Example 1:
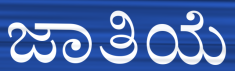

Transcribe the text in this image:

ಜಾತಿಯೆ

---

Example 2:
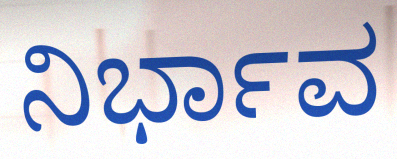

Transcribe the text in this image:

ನಿರ್ಭಾವ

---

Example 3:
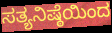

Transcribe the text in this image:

ಸತ್ಯನಿಷ್ಠೆಯಿಂದ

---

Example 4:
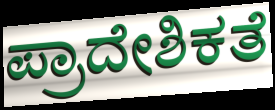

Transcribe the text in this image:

ಪ್ರಾದೇಶಿಕತೆ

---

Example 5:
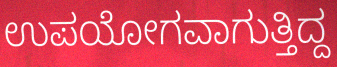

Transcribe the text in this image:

ಉಪಯೋಗವಾಗುತ್ತಿದ್ದ